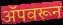
ॲपवरून